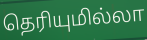
தெரியுமில்லா